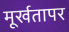
मूर्खतापर